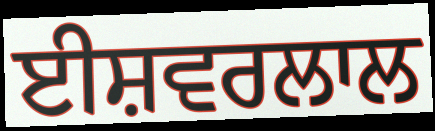
ਈਸ਼ਵਰਲਾਲ